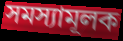
সমস্যামূলক